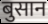
बुसान